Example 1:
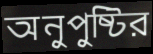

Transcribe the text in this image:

অনুপুষ্টির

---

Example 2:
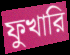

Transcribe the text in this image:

ফুখারি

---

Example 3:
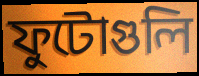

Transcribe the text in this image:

ফুটোগুলি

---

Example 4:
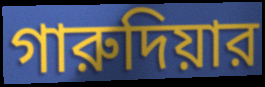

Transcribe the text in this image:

গারুদিয়ার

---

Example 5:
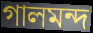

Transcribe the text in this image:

গালমন্দ